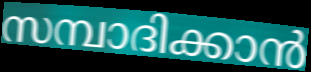
സമ്പാദിക്കാൻ